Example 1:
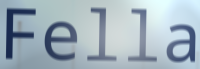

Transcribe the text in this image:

Fella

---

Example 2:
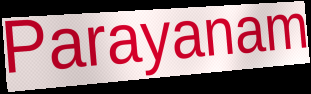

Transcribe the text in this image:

Parayanam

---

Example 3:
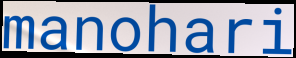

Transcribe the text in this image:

manohari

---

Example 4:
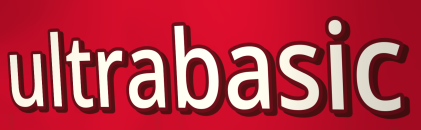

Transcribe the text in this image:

ultrabasic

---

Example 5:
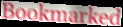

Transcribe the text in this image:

Bookmarked